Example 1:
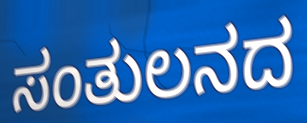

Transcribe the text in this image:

ಸಂತುಲನದ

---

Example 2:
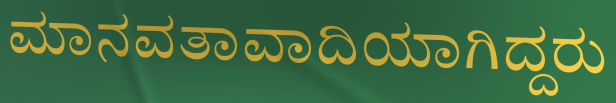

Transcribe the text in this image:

ಮಾನವತಾವಾದಿಯಾಗಿದ್ದರು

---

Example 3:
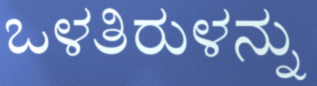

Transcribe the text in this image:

ಒಳತಿರುಳನ್ನು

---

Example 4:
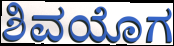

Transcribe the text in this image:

ಶಿವಯೊಗ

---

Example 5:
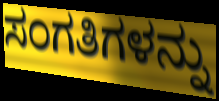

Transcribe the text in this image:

ಸಂಗತಿಗಳನ್ನು